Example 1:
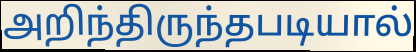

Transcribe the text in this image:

அறிந்திருந்தபடியால்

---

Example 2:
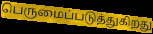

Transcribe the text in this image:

பெருமைப்படுத்துகிறது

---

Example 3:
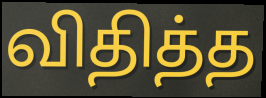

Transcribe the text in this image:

விதித்த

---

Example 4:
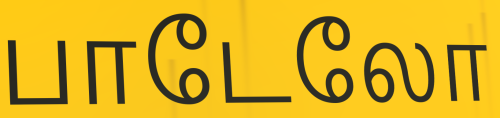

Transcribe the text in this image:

பாடேலோ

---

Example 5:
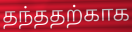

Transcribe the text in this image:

தந்ததற்காக